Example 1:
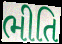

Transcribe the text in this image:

ભીતિ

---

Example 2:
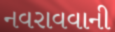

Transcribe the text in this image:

નવરાવવાની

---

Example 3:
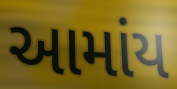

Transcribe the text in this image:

આમાંય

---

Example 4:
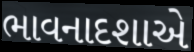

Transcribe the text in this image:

ભાવનાદશાએ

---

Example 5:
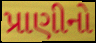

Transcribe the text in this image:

પ્રાણીનો